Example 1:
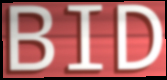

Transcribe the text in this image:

BID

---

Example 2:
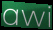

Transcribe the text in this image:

awi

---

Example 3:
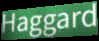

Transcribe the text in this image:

Haggard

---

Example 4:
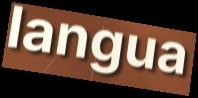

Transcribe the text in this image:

langua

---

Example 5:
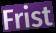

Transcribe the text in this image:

Frist